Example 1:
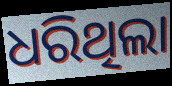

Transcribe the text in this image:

ଧରିଥିଲା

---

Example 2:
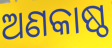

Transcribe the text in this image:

ଅଣକାଷ୍ଠ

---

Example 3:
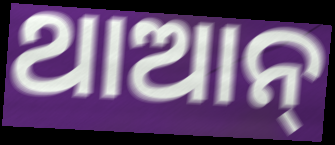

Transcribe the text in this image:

ଥାଆନ୍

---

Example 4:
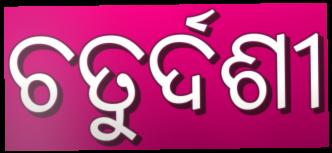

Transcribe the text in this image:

ଚତୁର୍ଦଶୀ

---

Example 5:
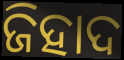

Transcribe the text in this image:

ଜିହାଦ